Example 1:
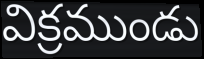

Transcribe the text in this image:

విక్రముండు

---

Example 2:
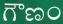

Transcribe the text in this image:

గౌణం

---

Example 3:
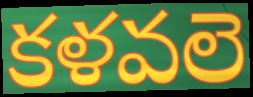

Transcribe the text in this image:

కళవలె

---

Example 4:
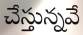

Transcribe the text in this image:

చేస్తున్నవే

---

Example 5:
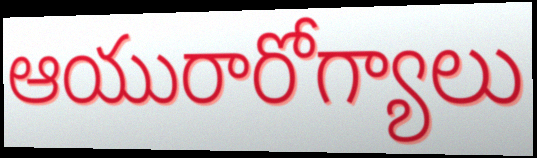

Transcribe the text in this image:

ఆయురారోగ్యాలు